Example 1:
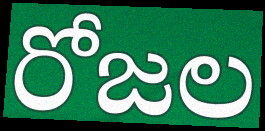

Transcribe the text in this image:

రోజల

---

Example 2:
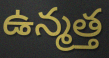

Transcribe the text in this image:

ఉన్మత్త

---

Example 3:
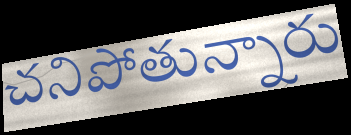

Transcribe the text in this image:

చనిపోతున్నారు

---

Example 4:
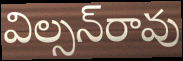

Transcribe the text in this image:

విల్సన్‌రావు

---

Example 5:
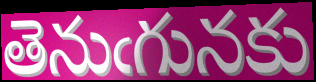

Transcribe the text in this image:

తెనుఁగునకు